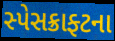
સ્પેસક્રાફ્ટના